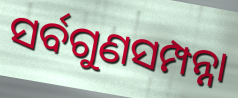
ସର୍ବଗୁଣସମ୍ପନ୍ନା